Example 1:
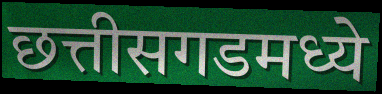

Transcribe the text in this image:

छत्तीसगडमध्ये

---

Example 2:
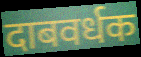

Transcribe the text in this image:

दाबवर्धक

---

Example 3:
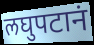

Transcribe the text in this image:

लघुपटानं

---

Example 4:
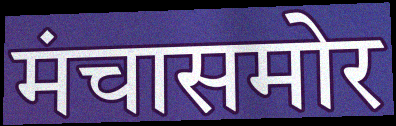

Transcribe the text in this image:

मंचासमोर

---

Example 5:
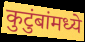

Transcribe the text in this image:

कुटुंबांमध्ये